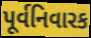
પૂર્વનિવારક